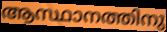
ആസ്ഥാനത്തിനു